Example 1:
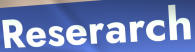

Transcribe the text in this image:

Reserarch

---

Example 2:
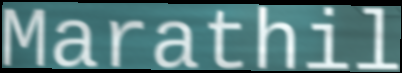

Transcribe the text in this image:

Marathil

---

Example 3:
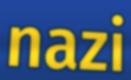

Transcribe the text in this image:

nazi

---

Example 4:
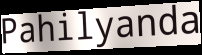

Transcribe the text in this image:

Pahilyanda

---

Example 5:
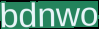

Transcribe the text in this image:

bdnwo